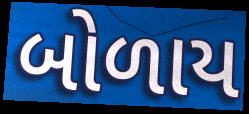
બોળાય